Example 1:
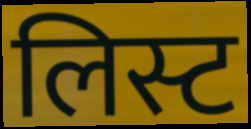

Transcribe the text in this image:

लिस्‍ट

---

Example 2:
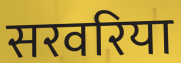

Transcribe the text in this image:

सरवरिया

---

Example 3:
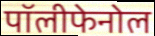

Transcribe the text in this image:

पॉलीफेनोल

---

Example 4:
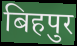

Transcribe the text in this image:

बिहपुर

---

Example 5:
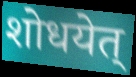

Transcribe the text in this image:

शोधयेत्